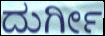
ದುರ್ಗೀ